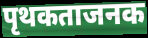
पृथकताजनक